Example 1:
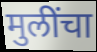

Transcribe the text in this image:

मुलींचा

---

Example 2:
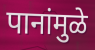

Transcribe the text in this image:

पानांमुळे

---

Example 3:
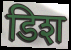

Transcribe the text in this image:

डिश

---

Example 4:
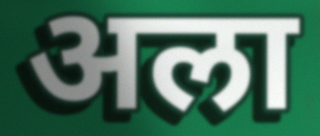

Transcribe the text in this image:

अला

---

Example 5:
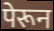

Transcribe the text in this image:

पेरून